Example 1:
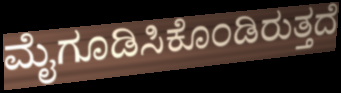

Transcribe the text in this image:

ಮೈಗೂಡಿಸಿಕೊಂಡಿರುತ್ತದೆ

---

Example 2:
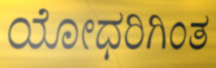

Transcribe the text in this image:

ಯೋಧರಿಗಿಂತ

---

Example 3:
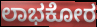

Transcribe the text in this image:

ಲಾಭಕೋರ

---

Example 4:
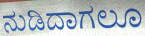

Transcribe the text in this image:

ನುಡಿದಾಗಲೂ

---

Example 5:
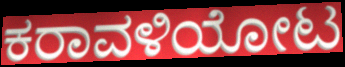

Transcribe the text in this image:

ಕರಾವಳಿಯೋಟ